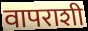
वापराशी